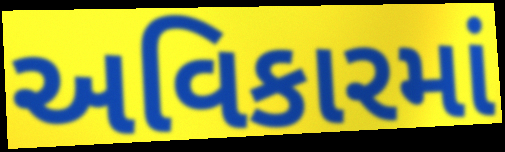
અવિકારમાં